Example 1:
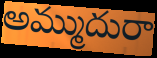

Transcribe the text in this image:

అమ్ముదురా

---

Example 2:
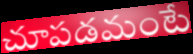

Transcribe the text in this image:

చూపడమంటే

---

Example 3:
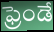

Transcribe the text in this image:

ఫ్రెండే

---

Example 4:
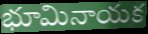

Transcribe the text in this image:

భూమినాయక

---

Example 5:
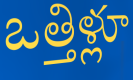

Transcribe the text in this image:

ఒత్తిళ్లూ